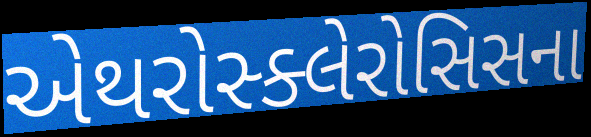
એથરોસ્ક્લેરોસિસના